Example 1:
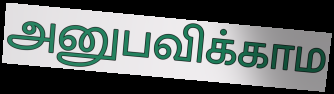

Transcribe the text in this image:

அனுபவிக்காம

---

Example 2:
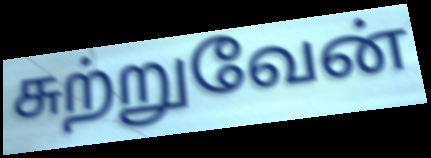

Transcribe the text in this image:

சுற்றுவேன்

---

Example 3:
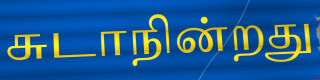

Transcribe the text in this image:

சுடாநின்றது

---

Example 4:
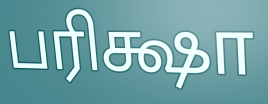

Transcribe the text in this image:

பரிக்ஷா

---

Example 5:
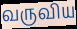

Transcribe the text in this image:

வருவிய